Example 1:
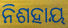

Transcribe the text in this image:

ନିଶହାୟ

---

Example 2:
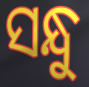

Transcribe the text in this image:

ସନ୍ଧୁ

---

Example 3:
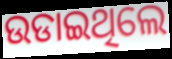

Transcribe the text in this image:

ଉଡାଇଥିଲେ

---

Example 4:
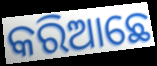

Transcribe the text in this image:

କରିଆଛେ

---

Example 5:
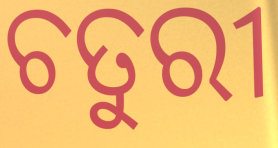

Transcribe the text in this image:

ଚତୁରୀ